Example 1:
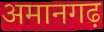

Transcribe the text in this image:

अमानगढ़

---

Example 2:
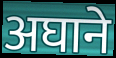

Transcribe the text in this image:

अघाने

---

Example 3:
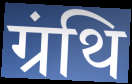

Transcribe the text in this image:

ग्रंथि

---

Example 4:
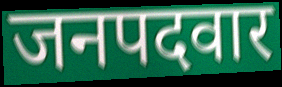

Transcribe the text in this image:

जनपदवार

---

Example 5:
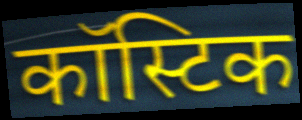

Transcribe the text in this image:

कॉस्टिक